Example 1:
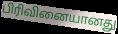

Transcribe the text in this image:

பிரிவினையானது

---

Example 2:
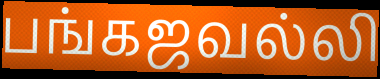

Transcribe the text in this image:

பங்கஜவல்லி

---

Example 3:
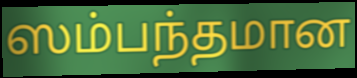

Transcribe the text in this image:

ஸம்பந்தமான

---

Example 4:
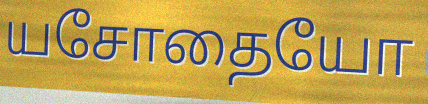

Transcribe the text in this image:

யசோதையோ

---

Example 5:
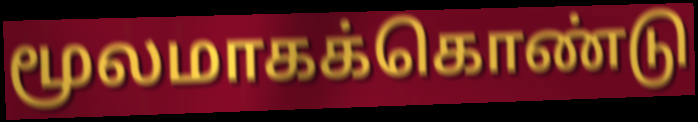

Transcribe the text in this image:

மூலமாகக்கொண்டு